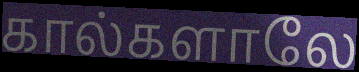
கால்களாலே